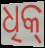
ଧିକ୍